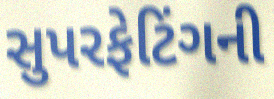
સુપરફેટિંગની